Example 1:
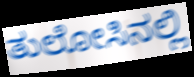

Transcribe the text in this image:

ತುಲೋಸಿನಲ್ಲಿ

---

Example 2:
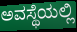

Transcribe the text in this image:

ಅವಸ್ಥೆಯಲ್ಲಿ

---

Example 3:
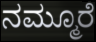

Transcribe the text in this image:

ನಮ್ಮೂರೆ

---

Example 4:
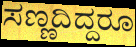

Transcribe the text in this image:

ಸಣ್ಣದಿದ್ದರೂ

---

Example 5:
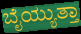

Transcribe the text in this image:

ಬೈಯ್ಯುತ್ತಾ